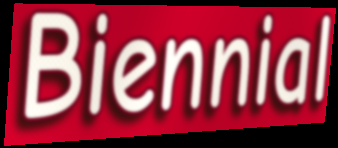
Biennial